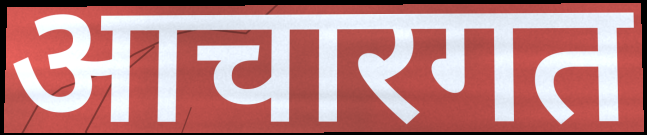
आचारगत